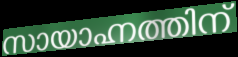
സായാഹ്നത്തിന്